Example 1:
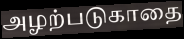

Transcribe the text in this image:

அழற்படுகாதை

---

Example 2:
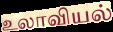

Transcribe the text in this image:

உலாவியல்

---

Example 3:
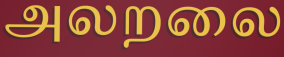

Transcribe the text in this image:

அலறலை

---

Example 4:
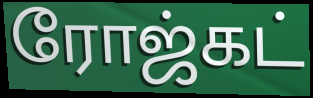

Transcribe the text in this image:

ரோஜ்கட்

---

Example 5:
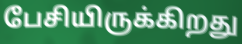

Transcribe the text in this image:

பேசியிருக்கிறது